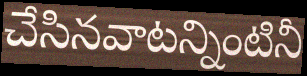
చేసినవాటన్నింటినీ